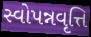
સ્વોપન્નવૃત્તિ